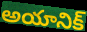
అయానిక్